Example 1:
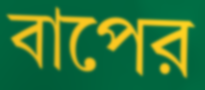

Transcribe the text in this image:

বাপের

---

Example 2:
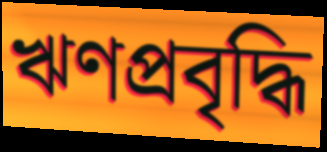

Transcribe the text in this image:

ঋণপ্রবৃদ্ধি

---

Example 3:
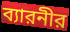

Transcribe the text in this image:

ব্যারনীর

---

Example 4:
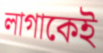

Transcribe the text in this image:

লাগাকেই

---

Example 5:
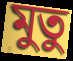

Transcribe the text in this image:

মুতু